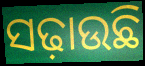
ସଢ଼ାଉଛି